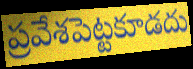
ప్రవేశపెట్టకూడదు